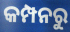
କମ୍ପନରୁ